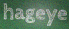
hageye